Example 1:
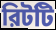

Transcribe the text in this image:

রিটটি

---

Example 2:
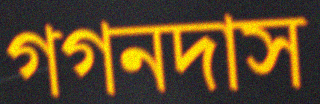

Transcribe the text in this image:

গগনদাস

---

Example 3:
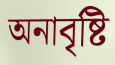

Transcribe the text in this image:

অনাবৃষ্টি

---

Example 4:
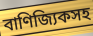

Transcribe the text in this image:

বাণিজ্যিকসহ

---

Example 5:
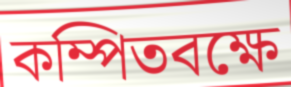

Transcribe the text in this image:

কম্পিতবক্ষে